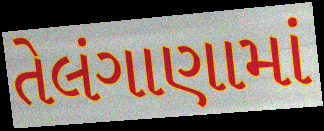
તેલંગાણામાં